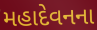
મહાદેવનના